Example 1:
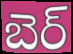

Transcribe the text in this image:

బెర్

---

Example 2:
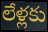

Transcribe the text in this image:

లేళ్లకు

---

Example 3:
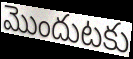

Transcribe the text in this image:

మొందుటకు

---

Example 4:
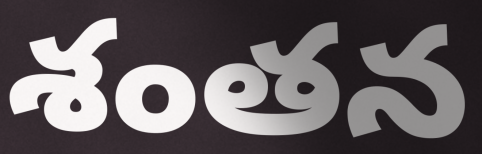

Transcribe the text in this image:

శంతన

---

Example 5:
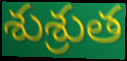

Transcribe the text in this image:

శుశ్రుత